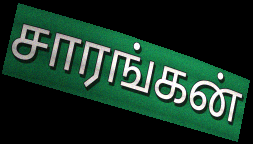
சாரங்கன்